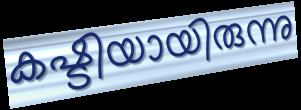
കഷ്ടിയായിരുന്നു